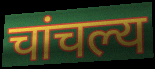
चांचल्य